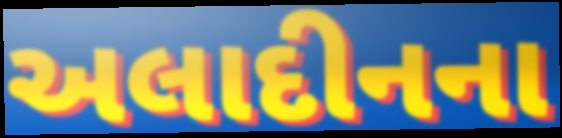
અલાદીનના